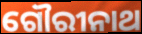
ଗୌରୀନାଥ